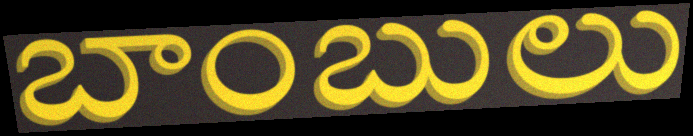
బాంబులు